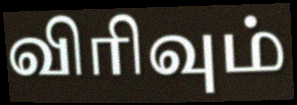
விரிவும்